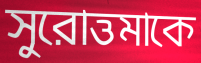
সুরোত্তমাকে